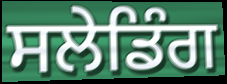
ਸਲੇਡਿੰਗ